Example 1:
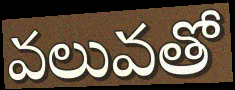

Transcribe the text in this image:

వలువతో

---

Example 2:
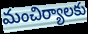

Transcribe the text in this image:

మంచిర్యాలకు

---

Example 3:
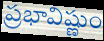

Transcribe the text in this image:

ప్రభావిష్ణుం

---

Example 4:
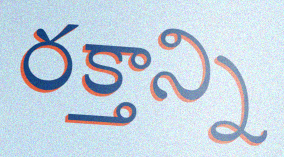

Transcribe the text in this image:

రక్తాన్ని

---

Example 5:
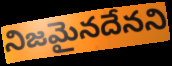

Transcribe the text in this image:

నిజమైనదేనని